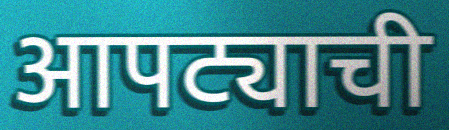
आपट्याची